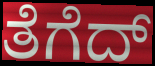
ತೆಗೆದ್